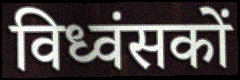
विध्वंसकों